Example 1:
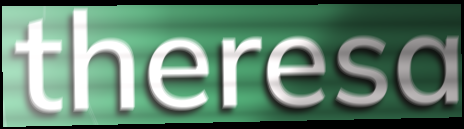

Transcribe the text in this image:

theresa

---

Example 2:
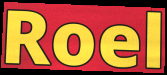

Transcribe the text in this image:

Roel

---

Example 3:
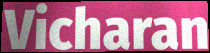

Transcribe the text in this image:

Vicharan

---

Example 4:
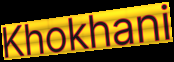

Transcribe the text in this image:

Khokhani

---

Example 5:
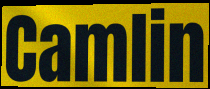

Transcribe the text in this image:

Camlin